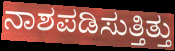
ನಾಶಪಡಿಸುತ್ತಿತ್ತು